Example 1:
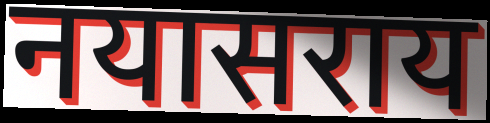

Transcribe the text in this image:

नयासराय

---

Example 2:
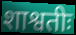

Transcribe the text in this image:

शाश्वतीः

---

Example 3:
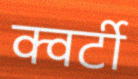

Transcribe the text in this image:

क्वर्टी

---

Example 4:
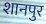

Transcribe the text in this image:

शानपुर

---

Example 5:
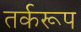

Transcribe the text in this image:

तर्करूप